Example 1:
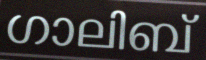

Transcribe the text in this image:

ഗാലിബ്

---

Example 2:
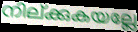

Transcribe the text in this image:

നില്ക്കുകയല്ലേ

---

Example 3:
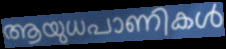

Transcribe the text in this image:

ആയുധപാണികൾ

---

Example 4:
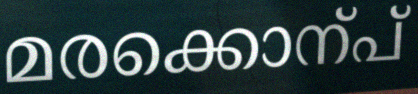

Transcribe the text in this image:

മരക്കൊന്പ്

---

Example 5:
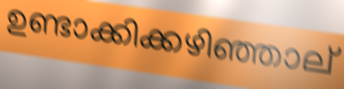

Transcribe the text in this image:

ഉണ്ടാക്കിക്കഴിഞ്ഞാല്